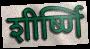
शीर्ष्णि